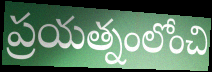
ప్రయత్నంలోంచి